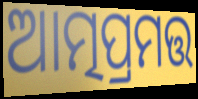
ଆତ୍ମପ୍ରମତ୍ତ